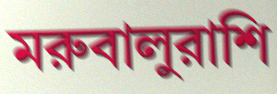
মরুবালুরাশি